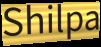
Shilpa